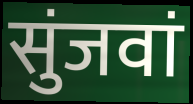
सुंजवां